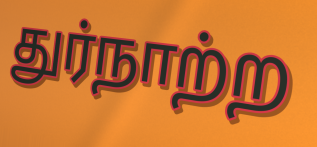
துர்நாற்ற